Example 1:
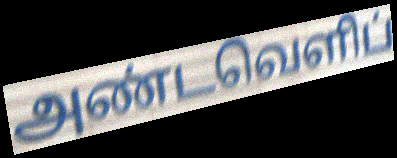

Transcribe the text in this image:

அண்டவெளிப்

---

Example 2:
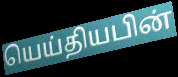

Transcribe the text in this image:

யெய்தியபின்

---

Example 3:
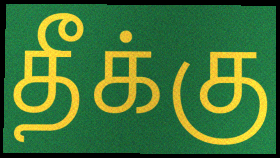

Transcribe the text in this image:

தீக்கு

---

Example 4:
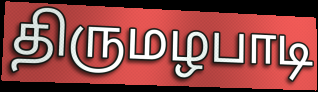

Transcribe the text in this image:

திருமழபாடி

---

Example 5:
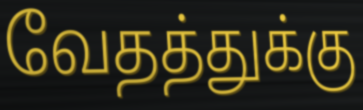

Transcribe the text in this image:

வேதத்துக்கு